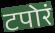
टपोरं